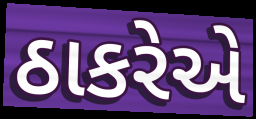
ઠાકરેએ